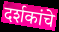
दर्शकांचे